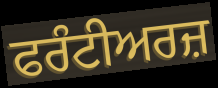
ਫਰੰਟੀਅਰਜ਼